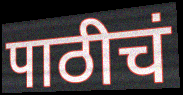
पाठीचं